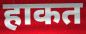
हाकत